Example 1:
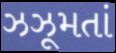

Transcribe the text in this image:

ઝઝૂમતાં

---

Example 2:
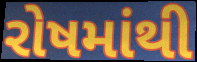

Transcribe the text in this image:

રોષમાંથી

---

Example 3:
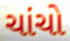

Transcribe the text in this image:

ચાંચો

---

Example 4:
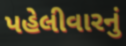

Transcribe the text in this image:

પહેલીવારનું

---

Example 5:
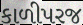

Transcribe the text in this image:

કાળીપરજ